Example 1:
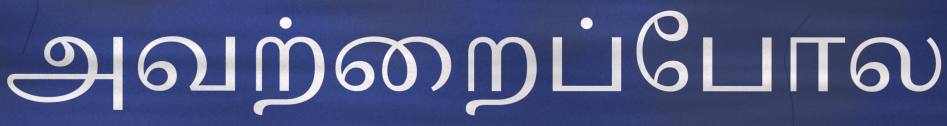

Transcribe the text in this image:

அவற்றைப்போல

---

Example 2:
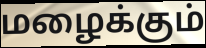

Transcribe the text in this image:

மழைக்கும்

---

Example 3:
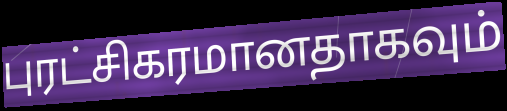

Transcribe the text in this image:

புரட்சிகரமானதாகவும்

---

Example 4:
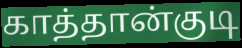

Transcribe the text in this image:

காத்தான்குடி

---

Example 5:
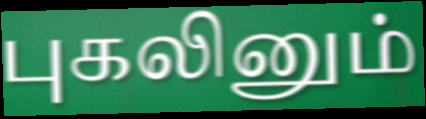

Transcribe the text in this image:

புகலினும்